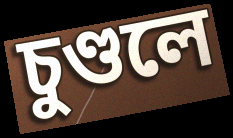
চুণ্ডলে